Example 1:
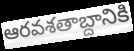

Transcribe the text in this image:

ఆరవశతాబ్దానికి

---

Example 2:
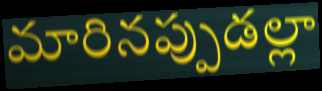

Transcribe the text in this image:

మారినప్పుడల్లా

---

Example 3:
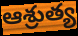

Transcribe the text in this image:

ఆశ్రుత్య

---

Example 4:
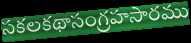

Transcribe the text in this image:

సకలకథాసంగ్రహసారము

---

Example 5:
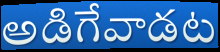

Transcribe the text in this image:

అడిగేవాడట